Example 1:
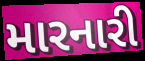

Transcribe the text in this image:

મારનારી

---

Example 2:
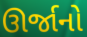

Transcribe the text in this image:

ઊર્જાનો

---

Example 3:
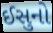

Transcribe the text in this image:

ઈસુનો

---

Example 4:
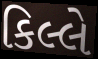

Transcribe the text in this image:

કિલ્લે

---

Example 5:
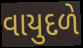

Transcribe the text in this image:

વાયુદળે